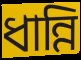
ধান্নি